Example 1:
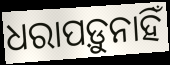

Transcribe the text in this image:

ଧରାପଡ଼ୁନାହିଁ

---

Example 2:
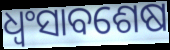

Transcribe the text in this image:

ଧ୍ଵଂସାବଶେଷ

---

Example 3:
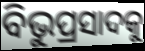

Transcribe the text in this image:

ବିଭୁପ୍ରସାଦକୁ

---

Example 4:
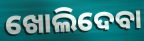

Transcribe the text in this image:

ଖୋଲିଦେବା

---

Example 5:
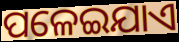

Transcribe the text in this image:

ପଳେଇଯାଏ